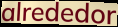
alrededor